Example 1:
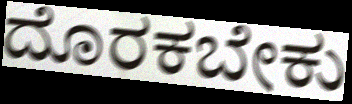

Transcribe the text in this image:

ದೊರಕಬೇಕು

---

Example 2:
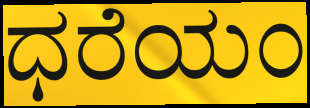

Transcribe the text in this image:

ಧರೆಯಂ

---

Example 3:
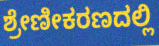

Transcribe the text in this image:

ಶ್ರೇಣೀಕರಣದಲ್ಲಿ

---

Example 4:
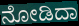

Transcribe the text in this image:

ನೋಡಿದಾ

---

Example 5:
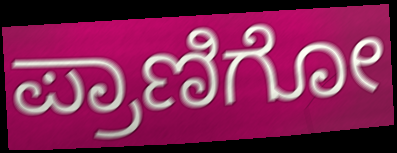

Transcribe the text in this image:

ಪ್ರಾಣಿಗೋ